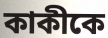
কাকীকে